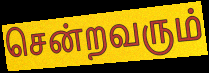
சென்றவரும்